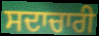
ਸਦਾਚਾਰੀ